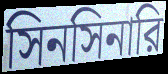
সিনসিনারি